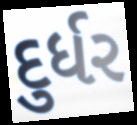
દુર્ધર